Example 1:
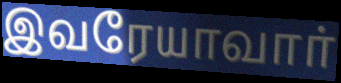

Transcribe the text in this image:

இவரேயாவார்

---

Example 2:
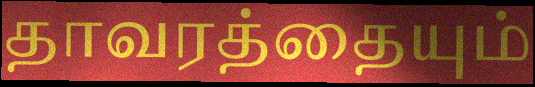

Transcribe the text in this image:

தாவரத்தையும்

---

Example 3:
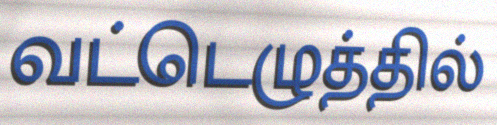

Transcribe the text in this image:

வட்டெழுத்தில்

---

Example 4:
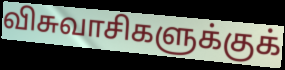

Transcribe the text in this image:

விசுவாசிகளுக்குக்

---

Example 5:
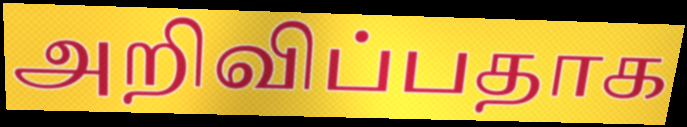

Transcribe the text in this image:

அறிவிப்பதாக